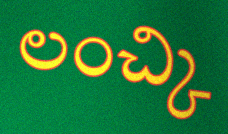
లంచ్కి